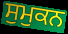
ਸੁਮੁਕਨ